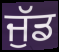
ਜੁੱਡ